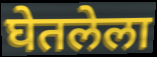
घेतलेला